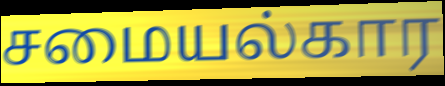
சமையல்கார